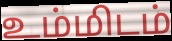
உம்மிடம்